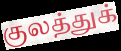
குலத்துக்